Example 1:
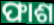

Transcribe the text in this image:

ଫାଶ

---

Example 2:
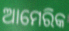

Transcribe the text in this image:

ଆମେରିକ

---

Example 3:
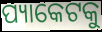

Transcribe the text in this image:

ପ୍ୟାକେଟକୁ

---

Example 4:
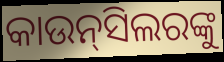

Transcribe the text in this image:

କାଉନ୍‌ସିଲରଙ୍କୁ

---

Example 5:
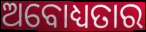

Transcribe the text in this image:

ଅବୋଧ୍ୟତାର